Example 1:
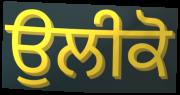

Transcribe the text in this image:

ਉਲੀਕੋ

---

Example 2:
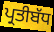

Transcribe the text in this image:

ਪ੍ਰਤੀਬੱਧ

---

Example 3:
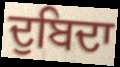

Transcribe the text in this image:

ਦੁਬਿਦਾ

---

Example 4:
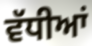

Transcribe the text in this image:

ਵੱਧੀਆਂ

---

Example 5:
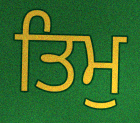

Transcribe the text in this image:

ਤਿਮੁ